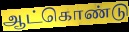
ஆட்கொண்டு